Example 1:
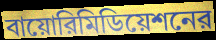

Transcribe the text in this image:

বায়োরিমিডিয়েশনের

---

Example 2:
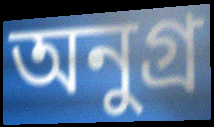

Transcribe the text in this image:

অনুগ্র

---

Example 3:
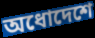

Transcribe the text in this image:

অধোদেশে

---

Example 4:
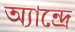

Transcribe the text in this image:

অ্যান্দ্রে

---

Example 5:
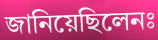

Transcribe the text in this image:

জানিয়েছিলেনঃ